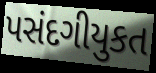
પસંદગીયુકત